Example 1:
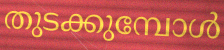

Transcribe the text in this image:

തുടക്കുമ്പോൾ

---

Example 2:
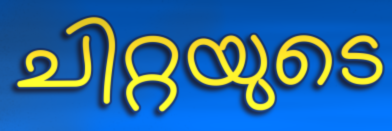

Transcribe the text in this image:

ചിറ്റയുടെ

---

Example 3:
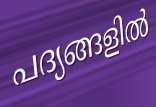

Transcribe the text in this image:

പദ്യങ്ങളിൽ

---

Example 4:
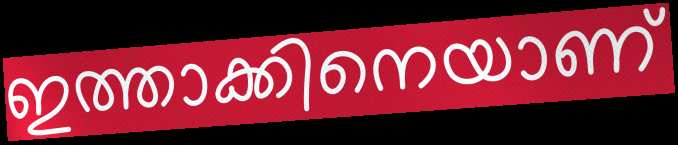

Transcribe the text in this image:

ഇത്താക്കിനെയാണ്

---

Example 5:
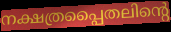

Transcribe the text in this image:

നക്ഷത്രപ്പൈതലിന്റെ